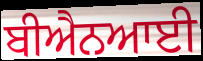
ਬੀਐਨਆਈ